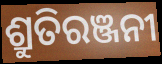
ଶ୍ରୁତିରଞ୍ଜନୀ